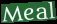
Meal